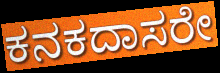
ಕನಕದಾಸರೇ